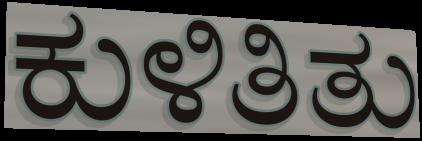
ಕುಳಿತಿತು